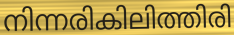
നിന്നരികിലിത്തിരി